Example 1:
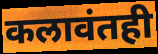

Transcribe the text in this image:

कलावंतही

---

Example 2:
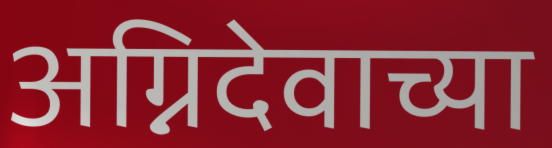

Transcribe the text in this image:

अग्निदेवाच्या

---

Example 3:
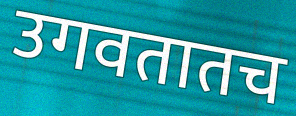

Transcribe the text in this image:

उगवतातच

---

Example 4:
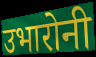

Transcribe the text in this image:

उभारोनी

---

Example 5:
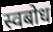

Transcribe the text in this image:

स्वबोध